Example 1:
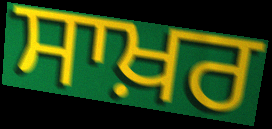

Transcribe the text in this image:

ਸਾਖ਼ਰ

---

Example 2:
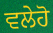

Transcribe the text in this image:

ਵਲੇਹੋ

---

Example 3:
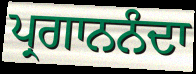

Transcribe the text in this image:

ਪ੍ਰਗਾਨਨੰਦਾ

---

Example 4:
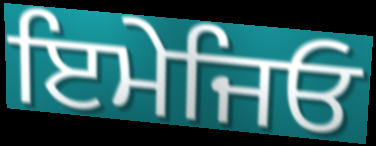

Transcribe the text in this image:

ਇਮੇਜਿਓ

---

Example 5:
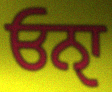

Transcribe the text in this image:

ਓਨਾੑ